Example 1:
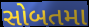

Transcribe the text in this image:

સોબતમા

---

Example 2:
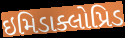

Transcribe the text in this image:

ઇમિડાક્લોપ્રિડ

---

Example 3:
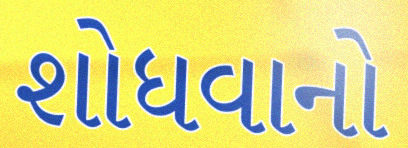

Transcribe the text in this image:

શોધવાનો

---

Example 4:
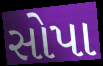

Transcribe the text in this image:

સોપા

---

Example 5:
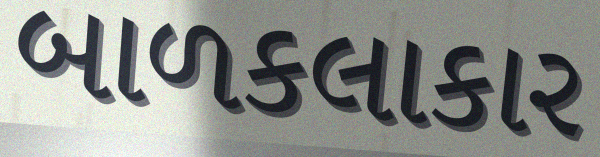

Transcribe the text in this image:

બાળકલાકાર